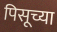
पिसूच्या